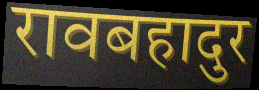
रावबहादुर